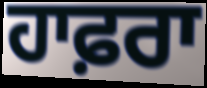
ਹਾਫ਼ਰਾ